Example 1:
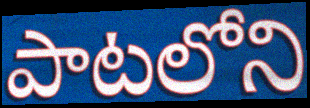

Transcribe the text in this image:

పాటలోని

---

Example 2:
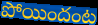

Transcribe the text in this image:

పోయిందంట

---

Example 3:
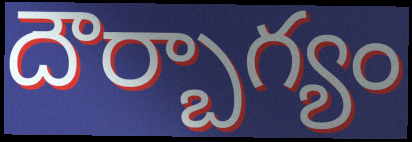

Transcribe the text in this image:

దౌర్బాగ్యం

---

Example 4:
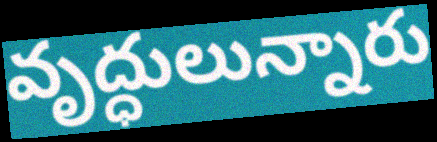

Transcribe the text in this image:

వృద్ధులున్నారు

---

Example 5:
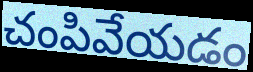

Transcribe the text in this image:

చంపివేయడం